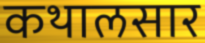
कथालसार